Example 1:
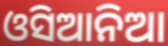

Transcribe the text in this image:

ଓସିଆନିଆ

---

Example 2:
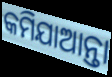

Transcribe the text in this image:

କମିଯାଆନ୍ତା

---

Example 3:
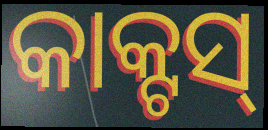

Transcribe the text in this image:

କାକ୍ଟସ୍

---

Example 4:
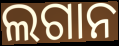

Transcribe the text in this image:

ଲଗାନ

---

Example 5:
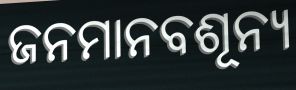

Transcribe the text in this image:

ଜନମାନବଶୂନ୍ୟ